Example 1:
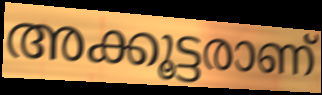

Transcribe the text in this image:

അക്കൂട്ടരാണ്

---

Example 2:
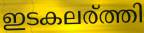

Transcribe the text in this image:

ഇടകലര്ത്തി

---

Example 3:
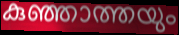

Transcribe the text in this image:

കുഞ്ഞാത്തയും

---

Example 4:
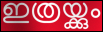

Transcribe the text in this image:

ഇത്രയ്ക്കും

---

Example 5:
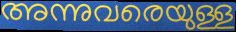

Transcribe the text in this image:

അന്നുവരെയുള്ള